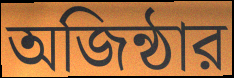
অজিন্ঠার